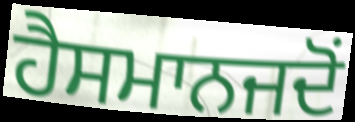
ਹੈਸਮਾਨਜਦੋਂ